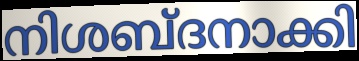
നിശബ്ദനാക്കി